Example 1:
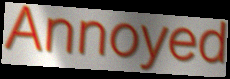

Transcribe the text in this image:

Annoyed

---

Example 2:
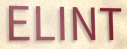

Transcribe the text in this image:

ELINT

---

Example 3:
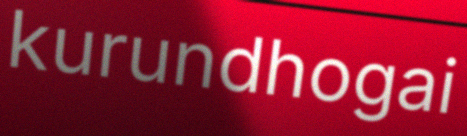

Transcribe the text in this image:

kurundhogai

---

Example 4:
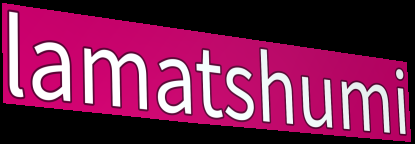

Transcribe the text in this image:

lamatshumi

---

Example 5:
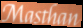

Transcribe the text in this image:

Masthan